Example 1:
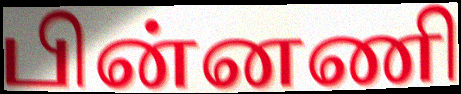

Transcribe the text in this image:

பின்னணி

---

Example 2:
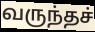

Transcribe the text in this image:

வருந்தச்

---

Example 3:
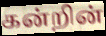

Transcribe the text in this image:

கன்றின்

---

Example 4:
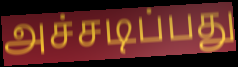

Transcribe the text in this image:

அச்சடிப்பது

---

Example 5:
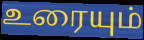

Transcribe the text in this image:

உரையும்